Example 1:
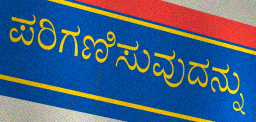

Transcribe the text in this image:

ಪರಿಗಣಿಸುವುದನ್ನು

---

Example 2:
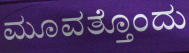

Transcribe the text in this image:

ಮೂವತ್ತೊಂದು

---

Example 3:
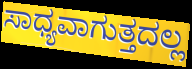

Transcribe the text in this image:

ಸಾಧ್ಯವಾಗುತ್ತದಲ್ಲ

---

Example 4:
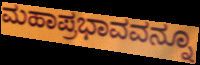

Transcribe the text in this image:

ಮಹಾಪ್ರಭಾವವನ್ನೂ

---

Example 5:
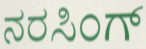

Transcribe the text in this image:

ನರಸಿಂಗ್